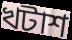
খটাশ